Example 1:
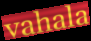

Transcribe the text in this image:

vahala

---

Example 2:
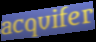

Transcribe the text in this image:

acquifer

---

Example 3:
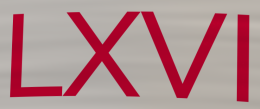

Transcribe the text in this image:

LXVI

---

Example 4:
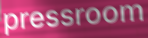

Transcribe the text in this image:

pressroom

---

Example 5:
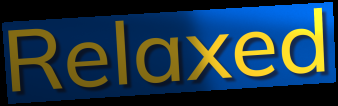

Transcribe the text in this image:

Relaxed